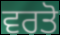
ਵਰਤੋ